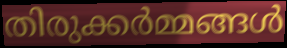
തിരുക്കർമ്മങ്ങൾ